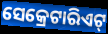
ସେକ୍ରେଟାରିଏଟ୍